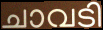
ചാവടി